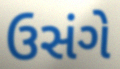
ઉસંગે